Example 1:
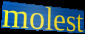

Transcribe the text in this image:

molest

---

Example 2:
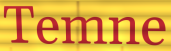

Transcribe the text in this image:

Temne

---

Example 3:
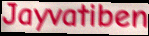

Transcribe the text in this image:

Jayvatiben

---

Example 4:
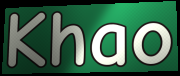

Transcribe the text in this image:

Khao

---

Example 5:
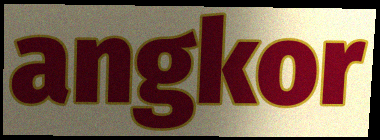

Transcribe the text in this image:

angkor